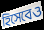
হিসেবেও